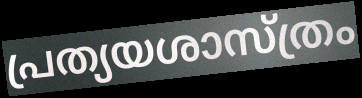
പ്രത്യയശാസ്ത്രം